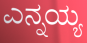
ಎನ್ನಯ್ಯ